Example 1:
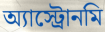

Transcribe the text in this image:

অ্যাস্ট্রোনমি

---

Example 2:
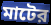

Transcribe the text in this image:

মাটের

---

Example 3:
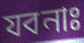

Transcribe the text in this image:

যবনাঃ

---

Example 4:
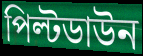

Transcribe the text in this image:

পিল্টডাউন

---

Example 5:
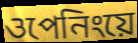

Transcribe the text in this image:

ওপেনিংয়ে